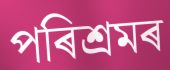
পৰিশ্ৰমৰ